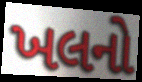
ખલનો